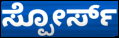
ಸ್ಪೋರ್ಸ್